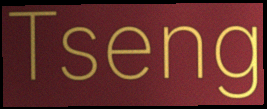
Tseng